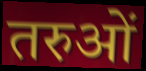
तरुओं